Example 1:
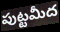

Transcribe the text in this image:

పుట్టమీద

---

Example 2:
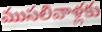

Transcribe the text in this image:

ముసలివాళ్లకు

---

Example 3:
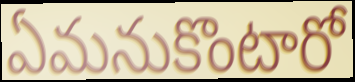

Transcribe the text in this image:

ఏమనుకొంటారో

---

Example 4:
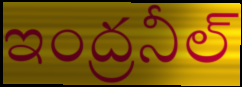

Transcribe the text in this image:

ఇంద్రనీల్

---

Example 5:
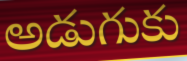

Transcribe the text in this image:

అడుగుకు